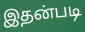
இதன்படி